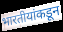
भारतीयांकडून